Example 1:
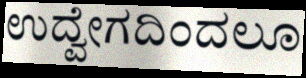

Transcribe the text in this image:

ಉದ್ವೇಗದಿಂದಲೂ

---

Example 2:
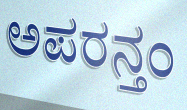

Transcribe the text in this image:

ಅಪರನ್ತಂ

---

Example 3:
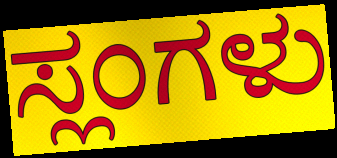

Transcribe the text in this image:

ಸ್ಲಂಗಳು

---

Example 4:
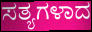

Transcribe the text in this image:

ಸತ್ಯಗಳಾದ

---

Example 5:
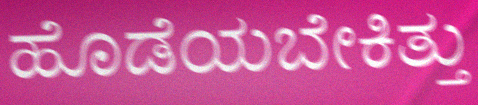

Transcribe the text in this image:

ಹೊಡೆಯಬೇಕಿತ್ತು